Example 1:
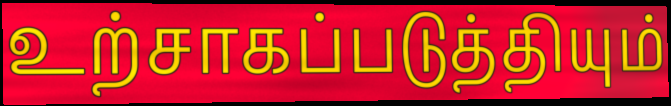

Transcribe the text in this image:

உற்சாகப்படுத்தியும்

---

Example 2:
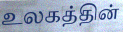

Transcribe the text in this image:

உலகத்தின்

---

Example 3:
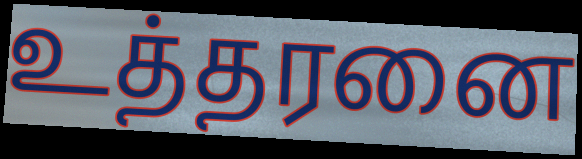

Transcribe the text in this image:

உத்தரனை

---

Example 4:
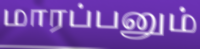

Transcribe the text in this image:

மாரப்பனும்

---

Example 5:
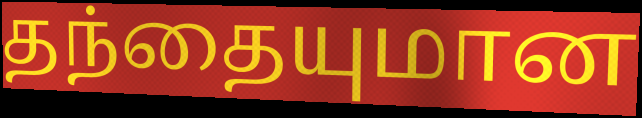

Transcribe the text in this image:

தந்தையுமான